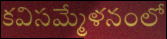
కవిసమ్మేళనంలో